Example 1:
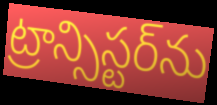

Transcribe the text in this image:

ట్రాన్సిస్టర్‌ను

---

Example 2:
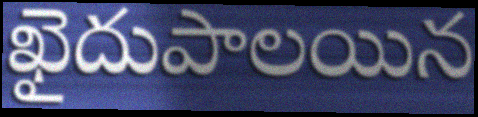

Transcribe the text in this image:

ఖైదుపాలయిన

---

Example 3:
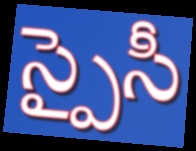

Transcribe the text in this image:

స్పైసీ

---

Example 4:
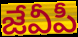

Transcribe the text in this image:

జేవీపీ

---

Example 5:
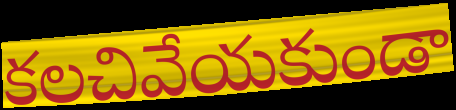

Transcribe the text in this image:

కలచివేయకుండా